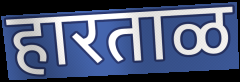
हारताळ